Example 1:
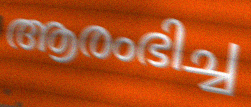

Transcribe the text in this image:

ആരംഭിച്ച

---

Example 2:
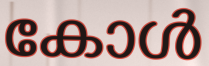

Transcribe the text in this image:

കോൾ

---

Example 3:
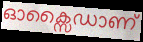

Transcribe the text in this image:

ഓക്സൈഡാണ്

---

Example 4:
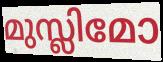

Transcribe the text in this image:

മുസ്ലിമോ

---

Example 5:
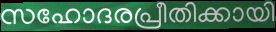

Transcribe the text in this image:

സഹോദരപ്രീതിക്കായി